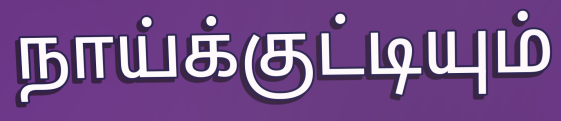
நாய்க்குட்டியும்